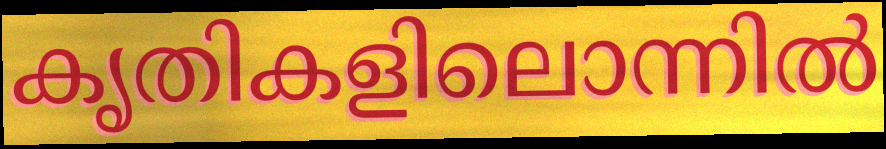
കൃതികളിലൊന്നിൽ